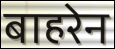
बाहरेन